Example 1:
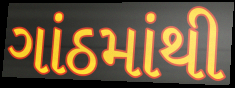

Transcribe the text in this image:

ગાંઠમાંથી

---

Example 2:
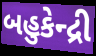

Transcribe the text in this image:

બહુકેન્દ્રી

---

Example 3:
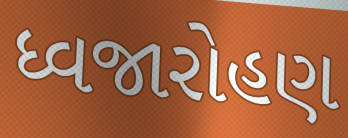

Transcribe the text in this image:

ધ્વજારોહણ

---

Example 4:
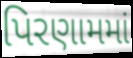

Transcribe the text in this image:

પિરણામમાં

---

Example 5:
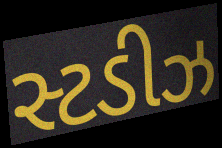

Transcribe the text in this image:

સ્ટડીઝ